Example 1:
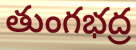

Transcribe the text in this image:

తుంగభద్ర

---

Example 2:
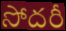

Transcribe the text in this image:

సోదరీ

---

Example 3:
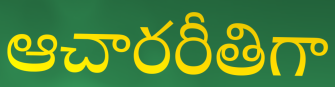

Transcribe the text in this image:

ఆచారరీతిగా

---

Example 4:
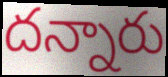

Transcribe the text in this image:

దన్నారు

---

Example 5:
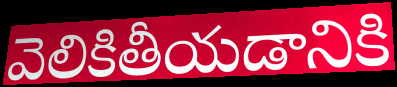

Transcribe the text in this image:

వెలికితీయడానికి